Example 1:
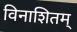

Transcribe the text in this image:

विनाशितम्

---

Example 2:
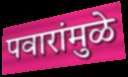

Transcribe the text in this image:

पवारांमुळे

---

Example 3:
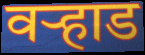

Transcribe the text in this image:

वर्‍हाड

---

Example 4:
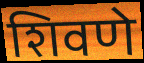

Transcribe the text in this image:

शिवणे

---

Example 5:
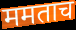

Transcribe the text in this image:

ममताच